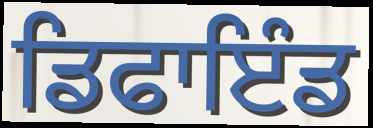
ਡਿਫਾਇੰਡ